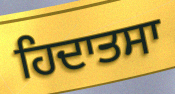
ਹਿਦਾਤਸਾ